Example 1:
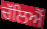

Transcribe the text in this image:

ਚੱਲਿਐਂ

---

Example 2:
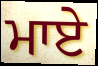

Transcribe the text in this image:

ਮਾਏ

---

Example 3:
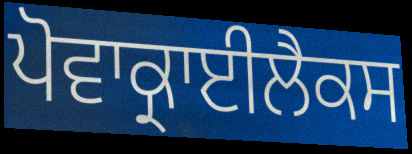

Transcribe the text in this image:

ਪੋਵਾਕ੍ਰਾਈਲੈਕਸ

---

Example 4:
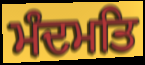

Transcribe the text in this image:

ਮੰਦਮਤਿ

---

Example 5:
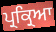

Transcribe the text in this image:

ਪ੍ਰਕ੍ਰਿਆ